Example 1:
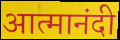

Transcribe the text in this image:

आत्मानंदी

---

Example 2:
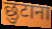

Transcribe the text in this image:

छुटाना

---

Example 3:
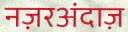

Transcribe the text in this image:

नज़रअंदाज़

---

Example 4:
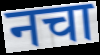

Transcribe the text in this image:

नचा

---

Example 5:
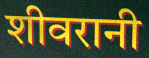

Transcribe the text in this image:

शीवरानी